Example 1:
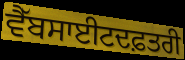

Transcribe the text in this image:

ਵੈੱਬਸਾਈਟਦਫ਼ਤਰੀ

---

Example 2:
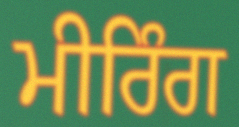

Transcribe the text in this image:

ਮੀਰਿੰਗ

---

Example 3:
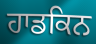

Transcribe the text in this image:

ਹਾਡਕਿਨ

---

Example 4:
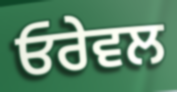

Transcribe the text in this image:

ਓਰੇਵਲ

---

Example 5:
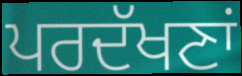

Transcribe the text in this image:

ਪਰਦੱਖਣਾਂ